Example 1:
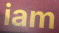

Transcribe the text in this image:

iam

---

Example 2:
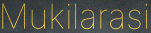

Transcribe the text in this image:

Mukilarasi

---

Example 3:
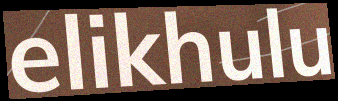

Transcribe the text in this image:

elikhulu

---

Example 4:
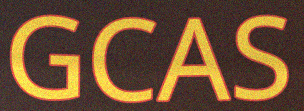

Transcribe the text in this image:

GCAS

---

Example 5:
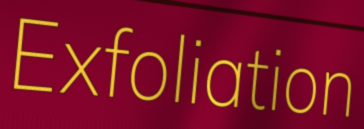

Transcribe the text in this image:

Exfoliation